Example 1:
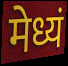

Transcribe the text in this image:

मेध्यं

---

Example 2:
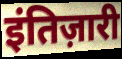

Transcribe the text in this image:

इंतिज़ारी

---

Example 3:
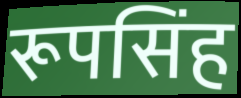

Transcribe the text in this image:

रूपसिंह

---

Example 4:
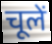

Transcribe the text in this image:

चूलें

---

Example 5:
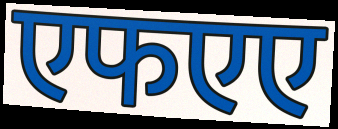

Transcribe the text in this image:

एफएए